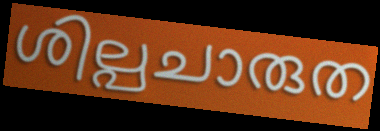
ശില്പചാരുത